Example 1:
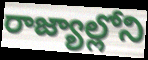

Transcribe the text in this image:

రాజ్యాల్లోని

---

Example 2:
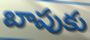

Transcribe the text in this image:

బాపుకు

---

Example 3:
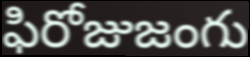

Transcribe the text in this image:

ఫిరోజుజంగు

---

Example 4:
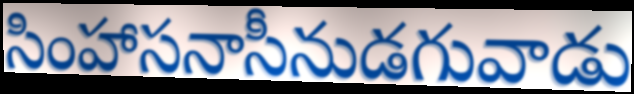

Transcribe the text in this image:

సింహాసనాసీనుడగువాడు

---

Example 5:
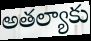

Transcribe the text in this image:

అతల్యాకు